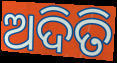
ଅଦିତି